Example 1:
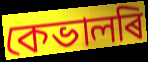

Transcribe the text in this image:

কেভালৰি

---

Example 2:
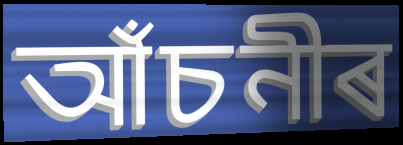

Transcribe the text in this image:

আঁচনীৰ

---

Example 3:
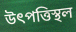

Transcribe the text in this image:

উৎপত্তিস্থল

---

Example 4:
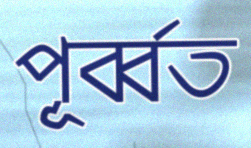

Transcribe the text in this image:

পূৰ্ব্বত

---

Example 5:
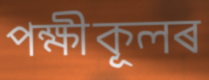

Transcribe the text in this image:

পক্ষীকূলৰ